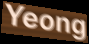
Yeong